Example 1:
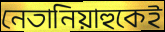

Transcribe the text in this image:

নেতানিয়াহুকেই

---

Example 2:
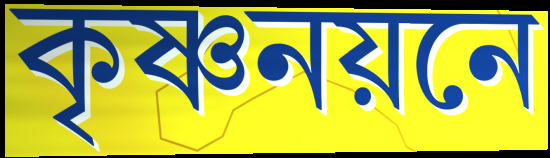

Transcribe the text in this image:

কৃষ্ণনয়নে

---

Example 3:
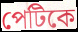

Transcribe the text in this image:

পেটিকে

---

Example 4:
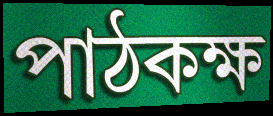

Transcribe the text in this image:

পাঠকক্ষ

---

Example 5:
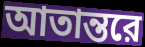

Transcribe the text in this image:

আতান্তরে